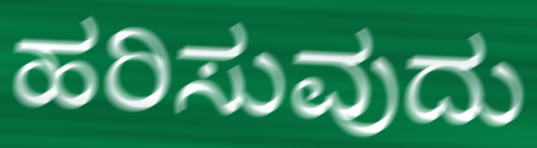
ಹರಿಸುವುದು